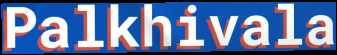
Palkhivala